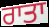
ਰਾਤਾ